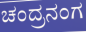
ಚಂದ್ರನಂಗ